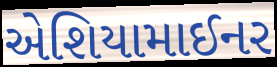
એશિયામાઈનર